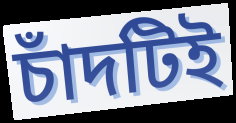
চাঁদটিই